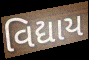
વિદ્યાય